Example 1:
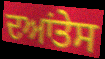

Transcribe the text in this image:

ਦਆਂਤੇਸ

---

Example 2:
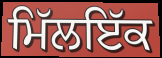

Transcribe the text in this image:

ਮਿੱਲਇੱਕ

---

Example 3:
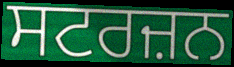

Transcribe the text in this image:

ਸਟਰਜ਼ਨ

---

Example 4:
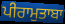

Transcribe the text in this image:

ਪੀਰਾਮੁਤਾਬਾ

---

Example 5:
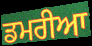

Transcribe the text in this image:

ਡਮਰੀਆ